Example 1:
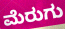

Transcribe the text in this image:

ಮೆರುಗು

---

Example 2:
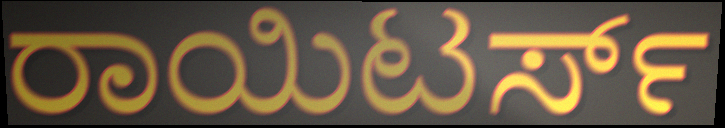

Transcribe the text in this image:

ರಾಯಿಟರ್ಸ್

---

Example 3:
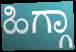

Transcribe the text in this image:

ಹಿಗ್ಗಾ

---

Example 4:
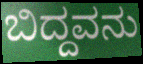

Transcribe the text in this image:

ಬಿದ್ದವನು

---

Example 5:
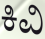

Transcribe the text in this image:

ಕಿವಿ